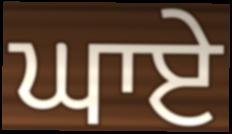
ਘਾਏ